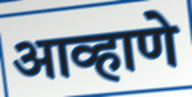
आव्हाणे